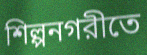
শিল্পনগরীতে